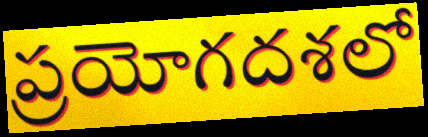
ప్రయోగదశలో